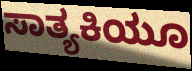
ಸಾತ್ಯಕಿಯೂ